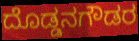
ದೊಡ್ಡನಗೌಡರ